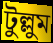
টুল্লুম